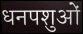
धनपशुओं